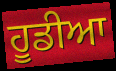
ਹੂਡੀਆ